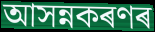
আসন্নকৰণৰ